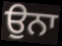
ਉਨਾ